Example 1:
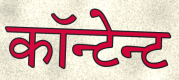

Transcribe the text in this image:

कॉन्टेन्ट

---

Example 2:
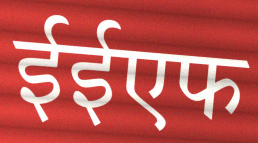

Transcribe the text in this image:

ईईएफ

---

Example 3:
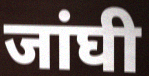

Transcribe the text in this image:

जांघी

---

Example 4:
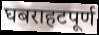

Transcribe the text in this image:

घबराहटपूर्ण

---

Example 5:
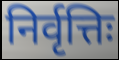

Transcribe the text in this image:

निर्वृत्तिः